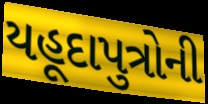
યહૂદાપુત્રોની